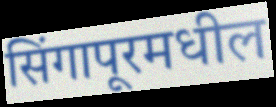
सिंगापूरमधील